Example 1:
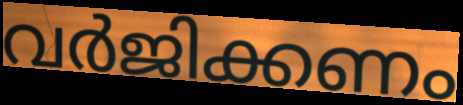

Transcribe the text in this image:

വർജിക്കണം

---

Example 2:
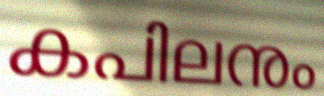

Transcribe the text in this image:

കപിലനും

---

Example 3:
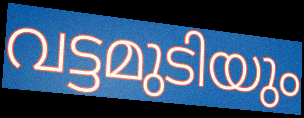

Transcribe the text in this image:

വട്ടമുടിയും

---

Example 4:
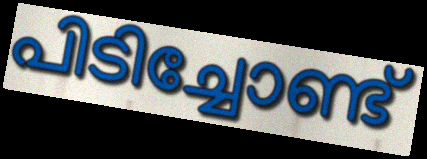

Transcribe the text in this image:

പിടിച്ചോണ്ട്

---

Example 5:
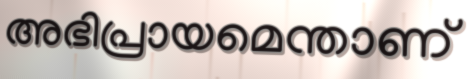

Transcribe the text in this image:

അഭിപ്രായമെന്താണ്